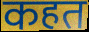
कहत